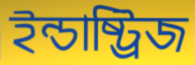
ইন্ডাষ্ট্রিজ